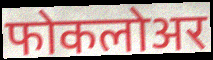
फोकलोअर